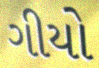
ગીયો